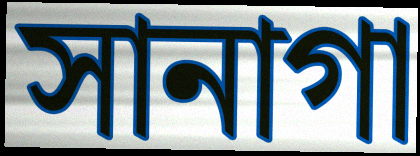
সানাগা